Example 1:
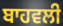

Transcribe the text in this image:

ਬਾਹਵਲੀ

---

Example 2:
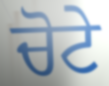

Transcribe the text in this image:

ਚੋਟੇ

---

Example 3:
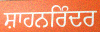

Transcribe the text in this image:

ਸ਼ਾਹਨਰਿੰਦਰ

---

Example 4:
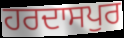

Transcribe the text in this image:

ਹਰਦਾਸਪੁਰ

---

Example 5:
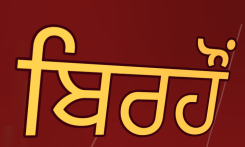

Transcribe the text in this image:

ਬਿਰਹੌਂ